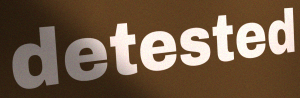
detested